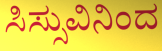
ಸಿಸ್ಸುವಿನಿಂದ